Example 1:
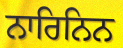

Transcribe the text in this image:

ਨਾਰਿਨਿਨ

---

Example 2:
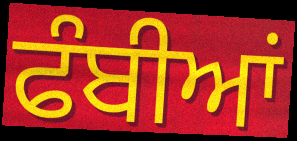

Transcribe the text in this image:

ਫੰਬੀਆਂ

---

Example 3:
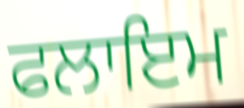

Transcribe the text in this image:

ਫਲਾਇਮ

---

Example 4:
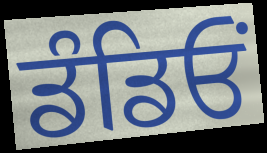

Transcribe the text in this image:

ਡੰਡਿਓਂ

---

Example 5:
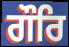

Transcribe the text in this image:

ਗੌਰਿ